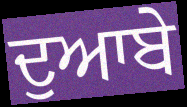
ਦੁਆਬੇ